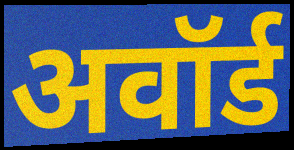
अवॉर्ड